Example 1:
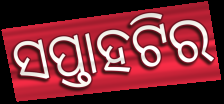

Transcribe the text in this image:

ସପ୍ତାହଟିର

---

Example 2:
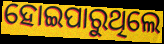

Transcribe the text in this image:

ହୋଇପାରୁଥିଲେ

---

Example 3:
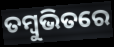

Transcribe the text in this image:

ତମ୍ବୁଭିତରେ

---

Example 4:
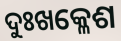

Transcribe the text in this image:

ଦୁଃଖକ୍ଳେଶ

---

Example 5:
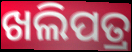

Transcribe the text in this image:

ଖଲିପତ୍ର